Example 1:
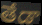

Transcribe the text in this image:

తేడా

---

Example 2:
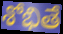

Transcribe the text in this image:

శోభితే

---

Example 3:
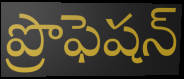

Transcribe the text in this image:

ప్రొఫెషన్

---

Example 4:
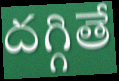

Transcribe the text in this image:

దగ్గితే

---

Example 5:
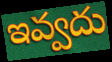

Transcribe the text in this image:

ఇవ్వదు